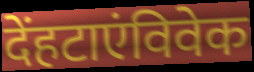
देंहटाएंविवेक